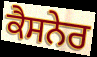
ਕੈਸਨੇਰ